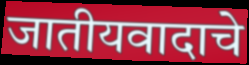
जातीयवादाचे